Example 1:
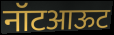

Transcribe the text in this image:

नॉटआऊट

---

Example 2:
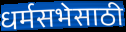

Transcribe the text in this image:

धर्मसभेसाठी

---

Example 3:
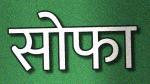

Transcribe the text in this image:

सोफा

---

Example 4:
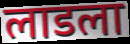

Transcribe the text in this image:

लाडला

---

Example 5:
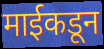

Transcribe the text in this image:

माईकडून